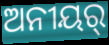
ଅନୀୟର୍